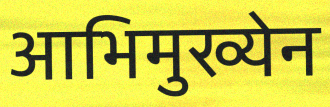
आभिमुख्येन